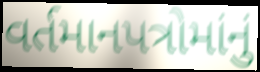
વર્તમાનપત્રોમાંનું